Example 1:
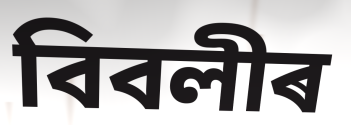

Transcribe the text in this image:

বিবলীৰ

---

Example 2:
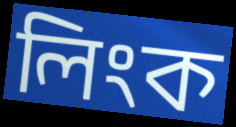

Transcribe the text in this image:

লিংক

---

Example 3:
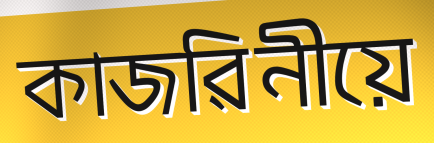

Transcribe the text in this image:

কাজৱিনীয়ে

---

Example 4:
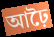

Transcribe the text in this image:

আঢ়ৈ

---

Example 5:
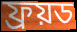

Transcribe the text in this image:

ফ্ৰয়ড